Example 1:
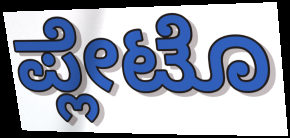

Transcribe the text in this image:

ಪ್ಲೇಟೊ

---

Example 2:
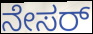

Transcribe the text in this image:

ನೇಸರ್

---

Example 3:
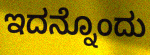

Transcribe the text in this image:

ಇದನ್ನೊಂದು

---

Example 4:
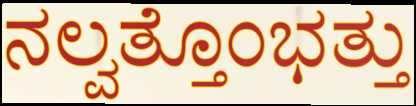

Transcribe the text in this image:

ನಲ್ವತ್ತೊಂಭತ್ತು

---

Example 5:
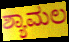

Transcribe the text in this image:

ಶ್ಯಾಮಲ